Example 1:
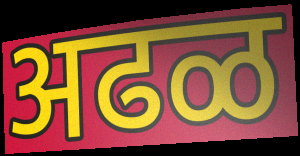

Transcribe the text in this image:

अढळ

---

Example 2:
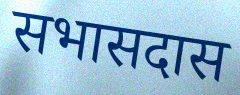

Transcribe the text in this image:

सभासदास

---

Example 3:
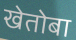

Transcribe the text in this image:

खेतोबा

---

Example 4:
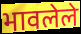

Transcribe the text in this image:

भावलेले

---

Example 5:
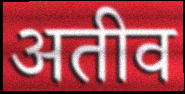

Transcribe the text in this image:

अतीव